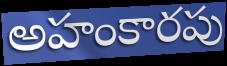
అహంకారపు